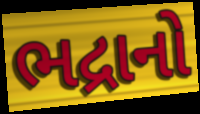
ભદ્રાનો